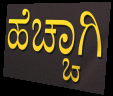
ಹೆಚ್ಚಾಗಿ